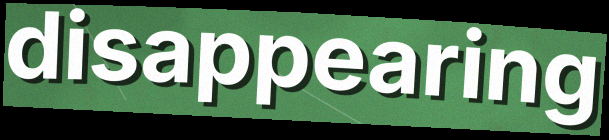
disappearing